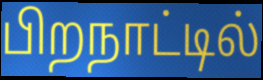
பிறநாட்டில்